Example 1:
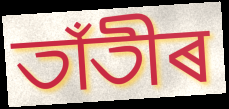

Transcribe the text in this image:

তাঁতীৰ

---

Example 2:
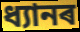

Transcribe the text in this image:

ধ্যানৰ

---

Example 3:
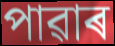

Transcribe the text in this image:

পাৱাৰ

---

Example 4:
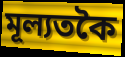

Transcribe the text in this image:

মূল্যতকৈ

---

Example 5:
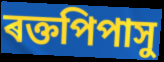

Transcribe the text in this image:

ৰক্তপিপাসু